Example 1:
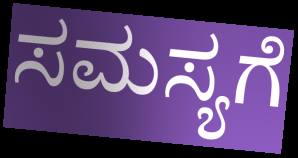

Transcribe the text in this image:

ಸಮಸ್ಯಗೆ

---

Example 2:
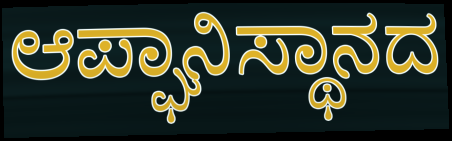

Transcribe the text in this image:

ಆಪ್ಘಾನಿಸ್ಥಾನದ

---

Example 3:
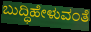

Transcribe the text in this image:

ಬುದ್ಧಿಹೇಳುವಂತೆ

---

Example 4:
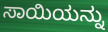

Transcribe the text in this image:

ಸಾಯಿಯನ್ನು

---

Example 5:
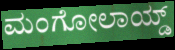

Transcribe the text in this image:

ಮಂಗೋಲಾಯ್ಡ್